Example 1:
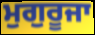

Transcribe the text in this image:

ਮੁਗੁਰੂਜਾ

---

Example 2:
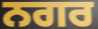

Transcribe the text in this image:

ਨਗਰ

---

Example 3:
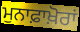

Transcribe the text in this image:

ਮੁਨਾਫ਼ਾਖ਼ੋਰਾਂ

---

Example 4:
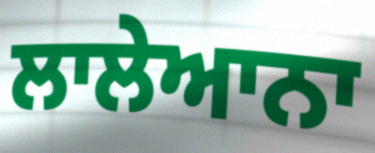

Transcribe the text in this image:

ਲਾਲੇਆਨਾ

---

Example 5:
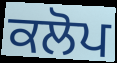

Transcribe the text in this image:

ਕਲੋਪ